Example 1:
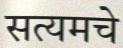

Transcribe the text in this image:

सत्यमचे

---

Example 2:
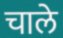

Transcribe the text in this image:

चाले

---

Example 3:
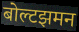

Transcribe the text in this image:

बोल्टझमन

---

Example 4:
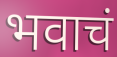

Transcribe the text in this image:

भवाचं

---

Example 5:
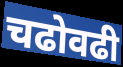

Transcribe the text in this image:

चढोवढी